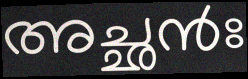
അച്ഛൻഃ